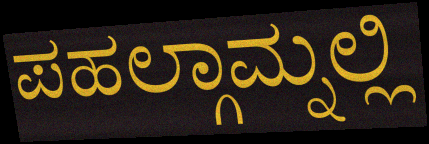
ಪಹಲ್ಗಾಮ್ನಲ್ಲಿ